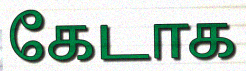
கேடாக